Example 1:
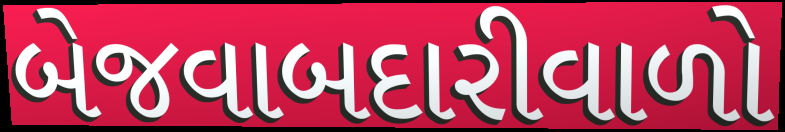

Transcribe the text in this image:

બેજવાબદારીવાળો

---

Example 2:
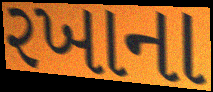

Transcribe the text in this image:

રખાના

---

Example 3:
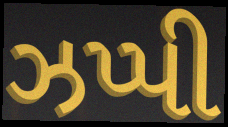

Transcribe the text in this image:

ઝપ્પી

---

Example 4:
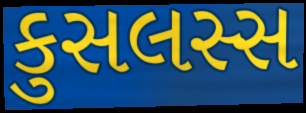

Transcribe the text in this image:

કુસલસ્સ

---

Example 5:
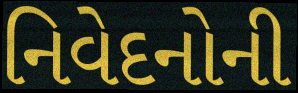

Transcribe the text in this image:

નિવેદનોની